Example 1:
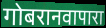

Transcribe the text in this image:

गोबरानवापारा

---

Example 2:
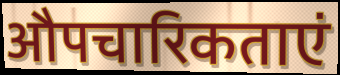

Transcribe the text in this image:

औपचारिकताएं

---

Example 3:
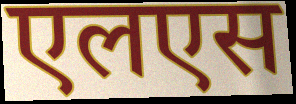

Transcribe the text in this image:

एलएस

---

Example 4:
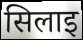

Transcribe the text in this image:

सिलाइ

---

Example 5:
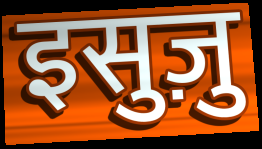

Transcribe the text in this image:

इसुज़ु